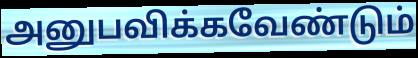
அனுபவிக்கவேண்டும்